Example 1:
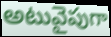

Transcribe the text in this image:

అటువైపుగా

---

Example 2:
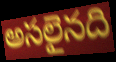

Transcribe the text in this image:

అసలైనది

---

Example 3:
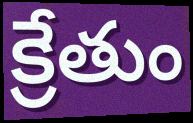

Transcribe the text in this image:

క్రేతుం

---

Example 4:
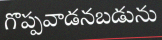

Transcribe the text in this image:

గొప్పవాడనబడును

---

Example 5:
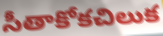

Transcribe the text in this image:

సీతాకోకచిలుక